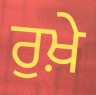
ਰੁਖ਼ੇ